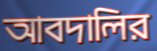
আবদালির